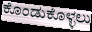
ಕೊಂಡುಕೊಳ್ಳಲು